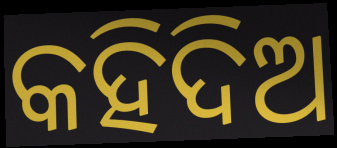
କହିଦିଅ